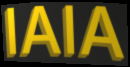
IAIA